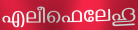
എലീഫെലേഹൂ